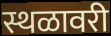
स्थळावरी